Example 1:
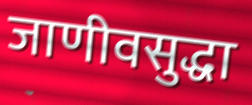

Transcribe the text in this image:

जाणीवसुद्धा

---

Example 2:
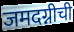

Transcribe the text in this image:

जमदग्नीची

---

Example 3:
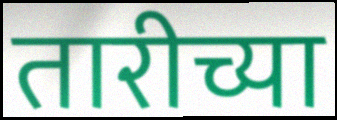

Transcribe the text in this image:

तारीच्या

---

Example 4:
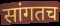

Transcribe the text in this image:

सांगतच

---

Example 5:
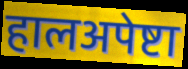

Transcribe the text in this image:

हालअपेष्टा